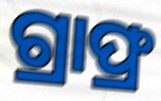
ଗ୍ରାଫ୍ର